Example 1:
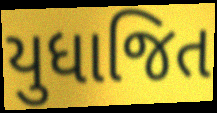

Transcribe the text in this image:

યુધાજિત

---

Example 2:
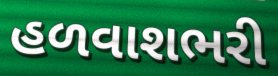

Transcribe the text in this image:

હળવાશભરી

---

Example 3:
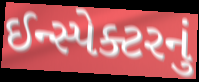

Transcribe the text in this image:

ઈન્સ્પેક્ટરનું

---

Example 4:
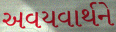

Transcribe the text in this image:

અવયવાર્થને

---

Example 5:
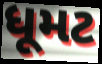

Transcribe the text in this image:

ધૂમટ